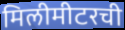
मिलीमीटरची